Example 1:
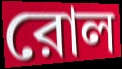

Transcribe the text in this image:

রোল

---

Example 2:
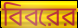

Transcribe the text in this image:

বিবরের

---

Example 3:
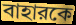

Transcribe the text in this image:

বাহারকে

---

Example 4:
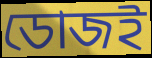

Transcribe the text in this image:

ডোজই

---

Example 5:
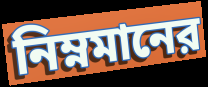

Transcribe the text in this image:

নিম্নমানের